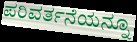
ಪರಿವರ್ತನೆಯನ್ನೂ